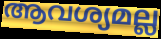
ആവശ്യമല്ല